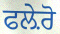
ਫਲ਼ੇਰੋ